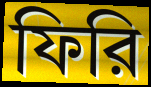
ফিরি